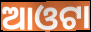
ଆଓଟା